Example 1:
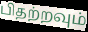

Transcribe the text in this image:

பிதற்றவும்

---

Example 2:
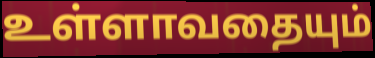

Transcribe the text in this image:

உள்ளாவதையும்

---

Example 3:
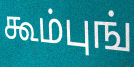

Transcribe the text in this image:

கூம்புங்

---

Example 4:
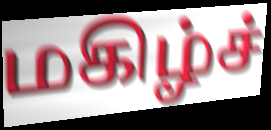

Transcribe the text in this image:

மகிழ்ச்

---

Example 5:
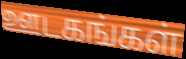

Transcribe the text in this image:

ஊடகங்கள்